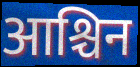
आश्चिन